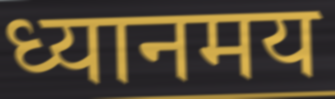
ध्यानमय